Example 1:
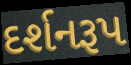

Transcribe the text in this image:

દર્શનરૂપ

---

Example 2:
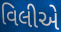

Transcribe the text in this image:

વિલીએ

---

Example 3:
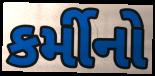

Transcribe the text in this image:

કર્મીનો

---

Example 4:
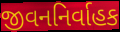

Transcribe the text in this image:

જીવનનિર્વાહક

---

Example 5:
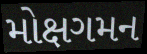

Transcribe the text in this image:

મોક્ષગમન